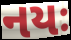
નયઃ